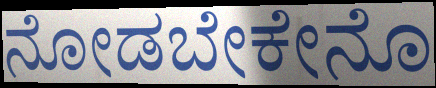
ನೋಡಬೇಕೇನೊ